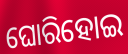
ଘୋରିହୋଇ